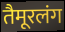
तैमूरलंग